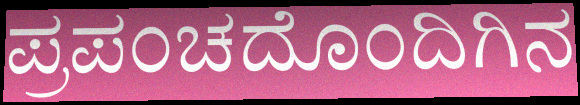
ಪ್ರಪಂಚದೊಂದಿಗಿನ